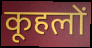
कूहलों